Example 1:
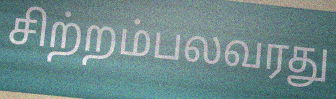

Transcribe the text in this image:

சிற்றம்பலவரது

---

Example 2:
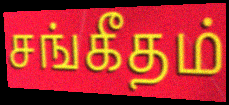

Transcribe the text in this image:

சங்கீதம்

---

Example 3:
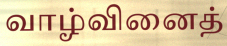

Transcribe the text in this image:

வாழ்வினைத்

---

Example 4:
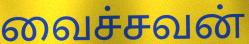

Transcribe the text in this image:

வைச்சவன்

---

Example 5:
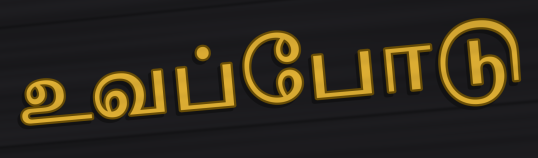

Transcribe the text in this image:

உவப்போடு